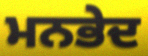
ਮਨਭੇਦ